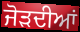
ਜੋੜਦੀਆਂ